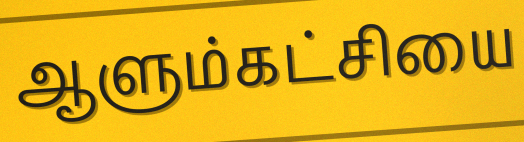
ஆளும்கட்சியை